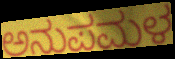
ಅನುಪಮಳ